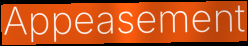
Appeasement